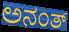
ಅನಂತ್